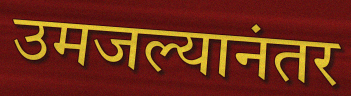
उमजल्यानंतर